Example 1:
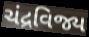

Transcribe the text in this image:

ચંદ્રવિજ્ય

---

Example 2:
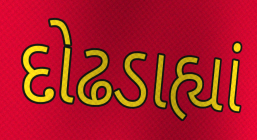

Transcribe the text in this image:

દોઢડાહ્યાં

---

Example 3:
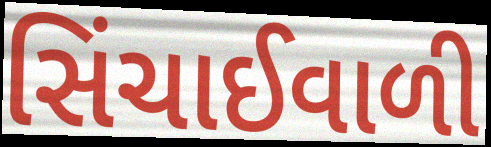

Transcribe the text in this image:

સિંચાઈવાળી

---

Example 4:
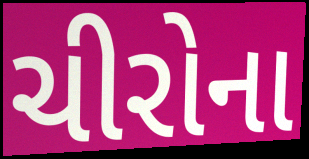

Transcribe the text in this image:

ચીરોના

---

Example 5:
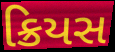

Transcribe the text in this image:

ક્રિયસ